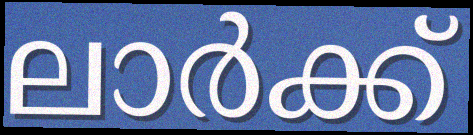
ലാർക്ക്